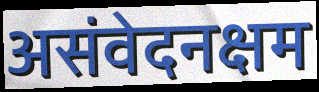
असंवेदनक्षम